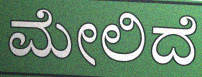
ಮೇಲಿದೆ